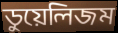
ডুয়েলিজম